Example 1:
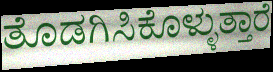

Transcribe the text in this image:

ತೊಡಗಿಸಿಕೊಳ್ಳುತ್ತಾರೆ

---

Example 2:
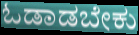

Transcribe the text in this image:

ಓಡಾಡಬೇಕು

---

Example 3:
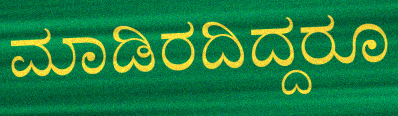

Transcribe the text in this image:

ಮಾಡಿರದಿದ್ದರೂ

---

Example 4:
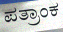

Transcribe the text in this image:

ಪತ್ರಾಂಕ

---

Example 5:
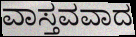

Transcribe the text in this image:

ವಾಸ್ತವವಾದ